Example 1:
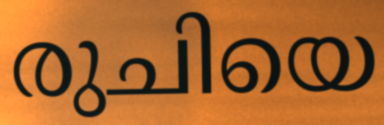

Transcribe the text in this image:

രുചിയെ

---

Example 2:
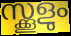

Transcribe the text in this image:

സ്ക്കൂളും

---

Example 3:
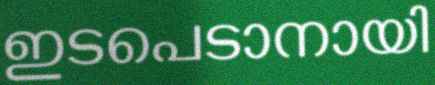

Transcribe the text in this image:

ഇടപെടാനായി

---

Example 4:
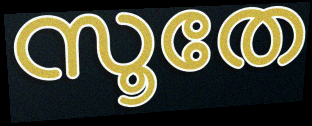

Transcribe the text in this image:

സൂതേ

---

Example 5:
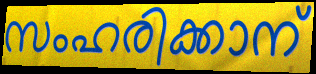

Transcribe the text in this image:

സംഹരിക്കാന്